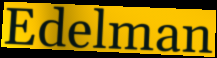
Edelman